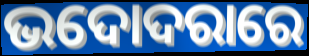
ଭଦୋଦରାରେ